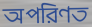
অপরিণত